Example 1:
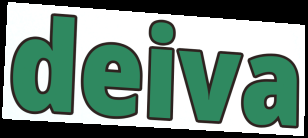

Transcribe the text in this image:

deiva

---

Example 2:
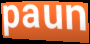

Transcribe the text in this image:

paun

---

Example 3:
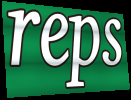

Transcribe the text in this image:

reps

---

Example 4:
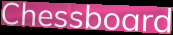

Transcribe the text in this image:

Chessboard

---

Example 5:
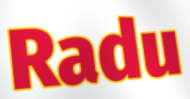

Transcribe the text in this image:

Radu